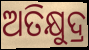
ଅତିକ୍ଷୁଦ୍ର